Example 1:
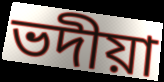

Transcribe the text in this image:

ভদীয়া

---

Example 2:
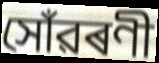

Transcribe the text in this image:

সোঁৱৰণী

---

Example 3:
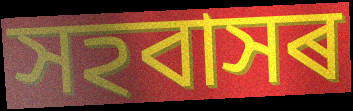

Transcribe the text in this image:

সহবাসৰ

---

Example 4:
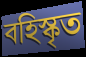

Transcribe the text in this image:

বহিস্কৃত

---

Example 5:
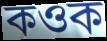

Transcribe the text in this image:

কওক